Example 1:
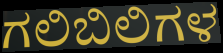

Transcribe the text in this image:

ಗಲಿಬಿಲಿಗಳ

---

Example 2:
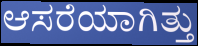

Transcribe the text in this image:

ಆಸರೆಯಾಗಿತ್ತು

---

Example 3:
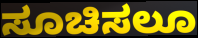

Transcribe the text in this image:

ಸೂಚಿಸಲೂ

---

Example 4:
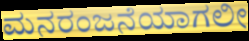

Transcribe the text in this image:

ಮನರಂಜನೆಯಾಗಲೀ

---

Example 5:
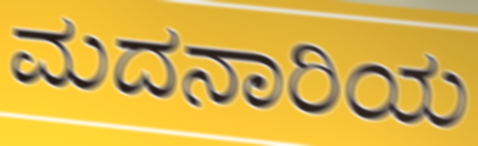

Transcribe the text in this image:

ಮದನಾರಿಯ